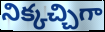
నిక్కచ్చిగా